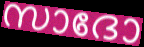
സാദോ